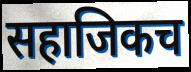
सहाजिकच